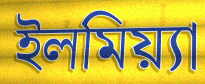
ইলমিয়্যা